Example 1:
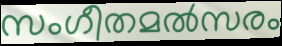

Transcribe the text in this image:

സംഗീതമൽസരം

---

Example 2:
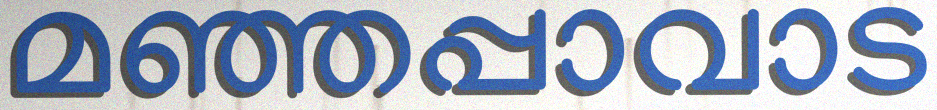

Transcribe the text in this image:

മഞ്ഞപ്പാവാട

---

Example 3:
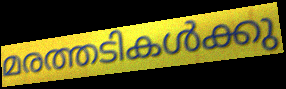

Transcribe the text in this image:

മരത്തടികൾക്കു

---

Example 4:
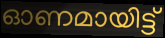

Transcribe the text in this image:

ഓണമായിട്ട്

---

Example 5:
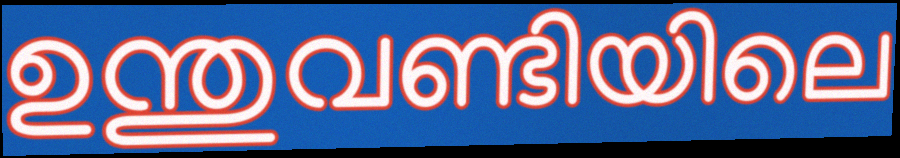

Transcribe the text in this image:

ഉന്തുവണ്ടിയിലെ